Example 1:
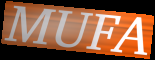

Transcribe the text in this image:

MUFA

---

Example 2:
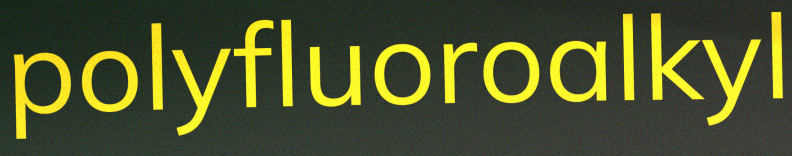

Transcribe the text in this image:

polyfluoroalkyl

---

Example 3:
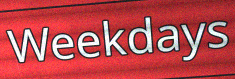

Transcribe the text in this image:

Weekdays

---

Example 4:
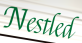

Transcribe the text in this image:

Nestled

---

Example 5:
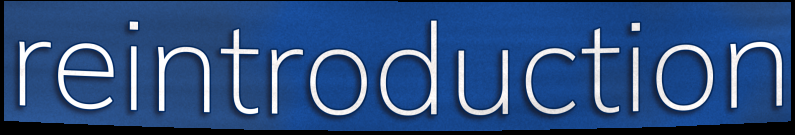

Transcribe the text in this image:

reintroduction